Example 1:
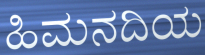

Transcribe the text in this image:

ಹಿಮನದಿಯ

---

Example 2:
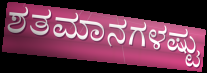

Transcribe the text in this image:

ಶತಮಾನಗಳಷ್ಟು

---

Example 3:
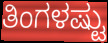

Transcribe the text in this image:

ತಿಂಗಳಷ್ಟು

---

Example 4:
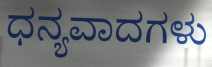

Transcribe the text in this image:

ಧನ್ಯವಾದಗಳು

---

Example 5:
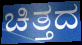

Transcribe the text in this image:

ಚಿತ್ತದ